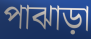
পাঝাড়া